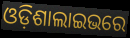
ଓଡ଼ିଶାଲାଇଭରେ